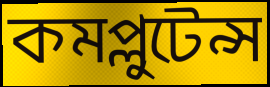
কমপ্লুটেন্স